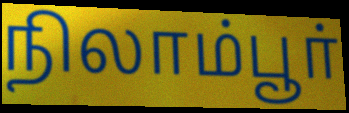
நிலாம்பூர்